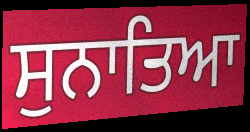
ਸੁਨਾਤਿਆ